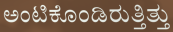
ಅಂಟಿಕೊಂಡಿರುತ್ತಿತ್ತು